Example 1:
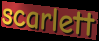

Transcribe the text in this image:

scarlett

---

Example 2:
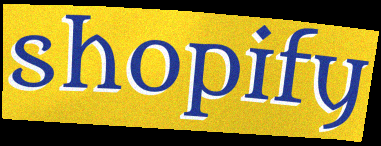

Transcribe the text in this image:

shopify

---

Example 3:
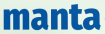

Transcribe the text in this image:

manta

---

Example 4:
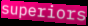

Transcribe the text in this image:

superiors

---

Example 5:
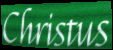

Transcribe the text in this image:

Christus